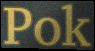
Pok